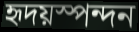
হৃদয়স্পন্দন